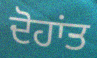
ਦੋਹਾਂਤ